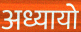
अध्यायो